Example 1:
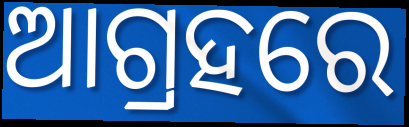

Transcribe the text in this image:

ଆଗ୍ରହରେ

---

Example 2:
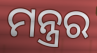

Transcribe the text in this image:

ମନ୍ତ୍ରର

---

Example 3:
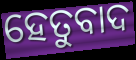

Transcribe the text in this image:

ହେତୁବାଦ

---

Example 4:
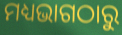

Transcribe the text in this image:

ମଧ୍ୟଭାଗଠାରୁ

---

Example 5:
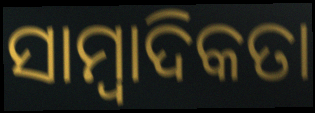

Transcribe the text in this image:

ସାମ୍ୱାଦିକତା